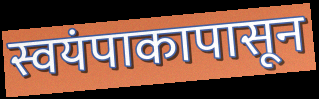
स्वयंपाकापासून